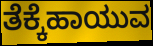
ತೆಕ್ಕೆಹಾಯುವ